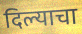
दिल्याचा